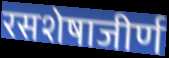
रसशेषाजीर्ण